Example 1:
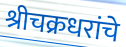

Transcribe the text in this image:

श्रीचक्रधरांचे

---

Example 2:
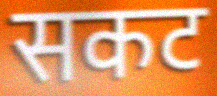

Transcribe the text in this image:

सकट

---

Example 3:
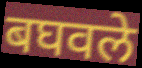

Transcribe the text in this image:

बघवले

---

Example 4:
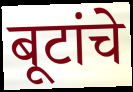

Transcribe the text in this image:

बूटांचे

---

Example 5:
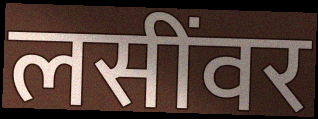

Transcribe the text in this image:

लसींवर